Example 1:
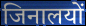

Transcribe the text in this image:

जिनालयों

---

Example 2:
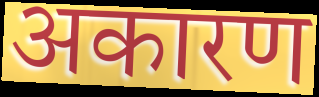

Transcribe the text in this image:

अकारण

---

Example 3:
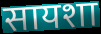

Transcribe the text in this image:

सायशा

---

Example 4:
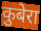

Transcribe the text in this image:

कुबेरा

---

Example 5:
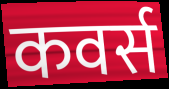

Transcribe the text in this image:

कवर्स